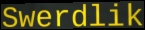
Swerdlik